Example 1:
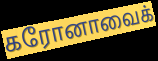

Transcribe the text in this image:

கரோனாவைக்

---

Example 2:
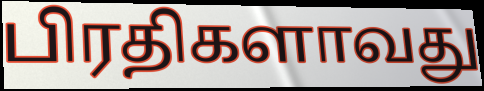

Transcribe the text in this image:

பிரதிகளாவது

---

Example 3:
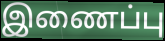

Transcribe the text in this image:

இணைப்பு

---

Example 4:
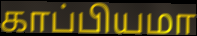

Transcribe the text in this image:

காப்பியமா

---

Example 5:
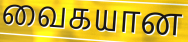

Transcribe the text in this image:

வைகயான